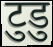
टुडु